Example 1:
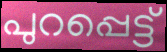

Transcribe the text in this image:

പുറപ്പെട്ട്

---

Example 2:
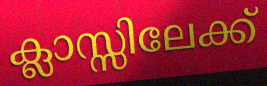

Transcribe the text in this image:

ക്ലാസ്സിലേക്ക്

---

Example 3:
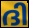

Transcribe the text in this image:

ദി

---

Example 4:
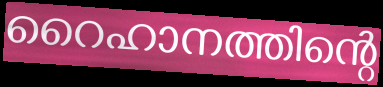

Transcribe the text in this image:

റൈഹാനത്തിന്റെ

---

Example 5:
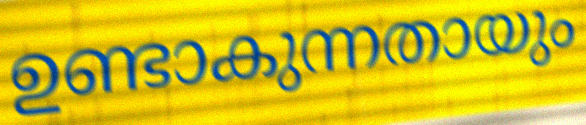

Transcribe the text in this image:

ഉണ്ടാകുന്നതായും